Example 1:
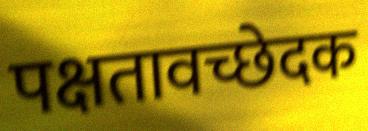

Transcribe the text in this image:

पक्षतावच्छेदक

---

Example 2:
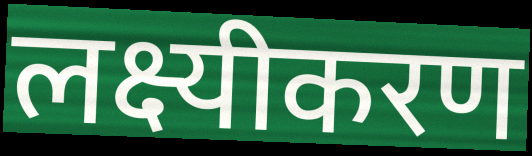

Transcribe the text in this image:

लक्ष्यीकरण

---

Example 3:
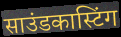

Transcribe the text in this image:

साउंडकास्टिंग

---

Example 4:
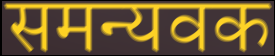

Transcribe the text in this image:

समन्यवक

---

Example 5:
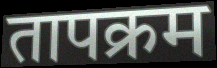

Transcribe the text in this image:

तापक्रम